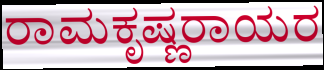
ರಾಮಕೃಷ್ಣರಾಯರ